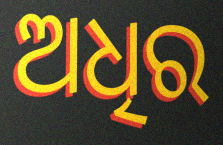
ଅଧିର